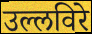
उल्लविरे